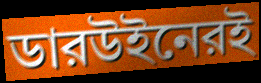
ডারউইনেরই